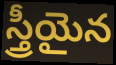
స్త్రీయైన